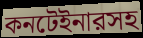
কনটেইনারসহ